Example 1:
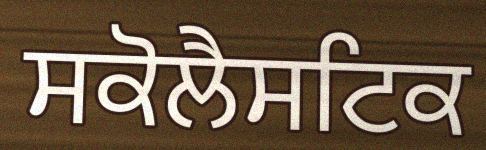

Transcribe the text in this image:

ਸਕੋਲੈਸਟਿਕ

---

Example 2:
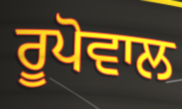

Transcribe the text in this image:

ਰੂਪੋਵਾਲ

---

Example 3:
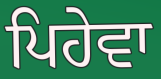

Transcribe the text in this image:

ਪਿਹੇਵਾ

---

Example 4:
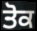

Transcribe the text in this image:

ਤੋਕ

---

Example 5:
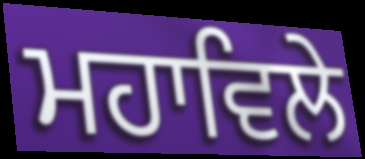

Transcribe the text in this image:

ਮਹਾਵਿਲੇ